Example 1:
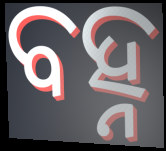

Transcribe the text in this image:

ବହ୍ନ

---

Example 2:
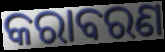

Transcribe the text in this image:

କରାବରଣ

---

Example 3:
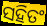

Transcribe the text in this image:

ସହିତଂ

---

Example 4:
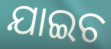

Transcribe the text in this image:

ଯାଇଚ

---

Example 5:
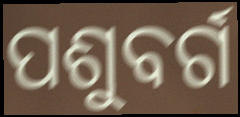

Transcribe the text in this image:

ପଶୁବର୍ଗ